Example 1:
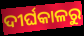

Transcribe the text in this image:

ଦୀର୍ଘକାଳରୁ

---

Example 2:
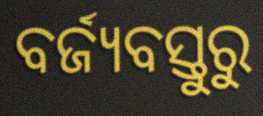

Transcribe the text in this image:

ବର୍ଜ୍ୟବସ୍ତୁରୁ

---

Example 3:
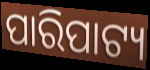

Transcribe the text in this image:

ପାରିପାଟ୍ୟ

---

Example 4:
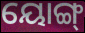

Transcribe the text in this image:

ୟୋଙ୍ଗ୍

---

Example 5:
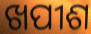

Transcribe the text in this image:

ଖପୀଶ